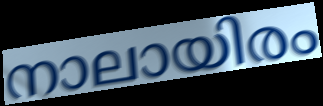
നാലായിരം